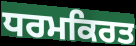
ਧਰਮਕਿਰਤ